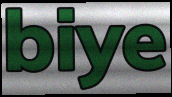
biye